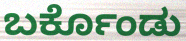
ಬರ್ಕೊಂಡು